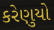
કરેણુયો